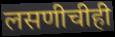
लसणीचीही